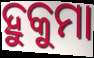
ହୁକୁମା